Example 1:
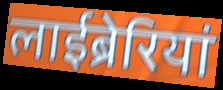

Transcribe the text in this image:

लाईब्रेरियां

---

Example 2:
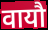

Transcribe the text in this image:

वायौ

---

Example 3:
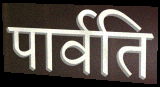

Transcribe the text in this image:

पार्वति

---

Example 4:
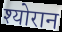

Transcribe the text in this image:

श्योरान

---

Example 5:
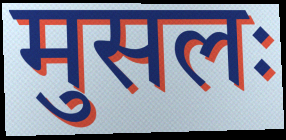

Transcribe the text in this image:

मुसलः